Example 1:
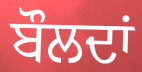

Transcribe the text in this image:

ਬੌਲਦਾਂ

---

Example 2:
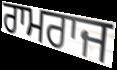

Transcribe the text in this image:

ਰਾਮਰਾਜ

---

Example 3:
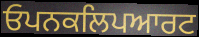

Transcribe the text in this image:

ਓਪਨਕਲਿਪਆਰਟ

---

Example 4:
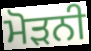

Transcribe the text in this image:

ਮੋੜਨੀ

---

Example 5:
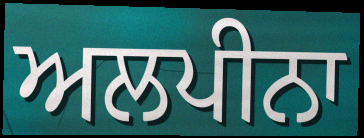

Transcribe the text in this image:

ਅਲਪੀਨਾ